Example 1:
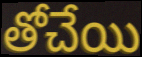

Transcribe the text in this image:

తోచేయి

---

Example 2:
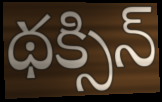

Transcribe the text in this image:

థక్సిన్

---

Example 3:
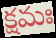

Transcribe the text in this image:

క్షమః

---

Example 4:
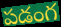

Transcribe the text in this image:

పడంగ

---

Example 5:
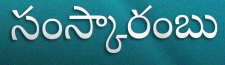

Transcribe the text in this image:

సంస్కారంబు